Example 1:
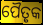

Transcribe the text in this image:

ପୈତୃକ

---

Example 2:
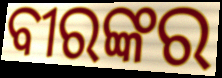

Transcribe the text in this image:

ବୀରଙ୍କର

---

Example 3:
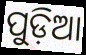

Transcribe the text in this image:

ପୁଡ଼ିଆ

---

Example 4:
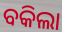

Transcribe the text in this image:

ବକିଲା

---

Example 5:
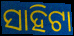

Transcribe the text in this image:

ସାହିଟା